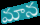
మాన